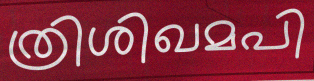
ത്രിശിഖമപി